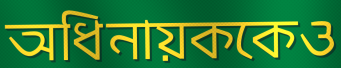
অধিনায়ককেও